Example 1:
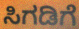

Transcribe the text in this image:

ಸಿಗಡಿಗೆ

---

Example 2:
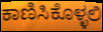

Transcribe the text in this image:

ಕಾಣಿಸಿಕೊಳ್ಳಲಿ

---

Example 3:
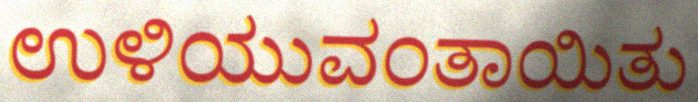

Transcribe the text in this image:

ಉಳಿಯುವಂತಾಯಿತು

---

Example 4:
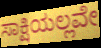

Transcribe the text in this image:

ಸಾಕ್ಷಿಯಲ್ಲವೇ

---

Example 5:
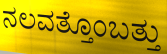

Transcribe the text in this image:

ನಲವತ್ತೊಂಬತ್ತು